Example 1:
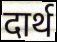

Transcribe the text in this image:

दार्थ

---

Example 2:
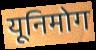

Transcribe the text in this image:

यूनिमोग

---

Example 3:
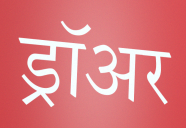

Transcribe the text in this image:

ड्रॉअर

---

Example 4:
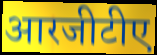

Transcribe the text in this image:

आरजीटीए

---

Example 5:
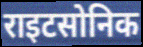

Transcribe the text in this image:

राइटसोनिक